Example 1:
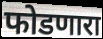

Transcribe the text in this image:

फोडणारा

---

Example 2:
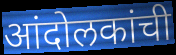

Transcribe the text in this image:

आंदोलकांची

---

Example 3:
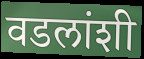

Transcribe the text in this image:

वडलांशी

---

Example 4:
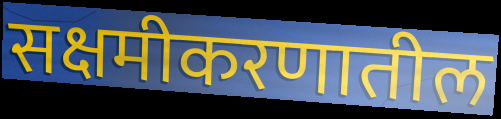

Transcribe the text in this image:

सक्षमीकरणातील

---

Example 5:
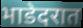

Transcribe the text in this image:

भाडेदरात